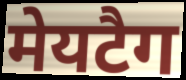
मेयटैग